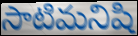
సాటిమనిషి